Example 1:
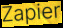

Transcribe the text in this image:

Zapier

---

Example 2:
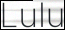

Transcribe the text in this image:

Lulu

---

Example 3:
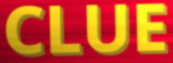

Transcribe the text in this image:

CLUE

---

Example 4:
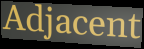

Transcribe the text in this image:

Adjacent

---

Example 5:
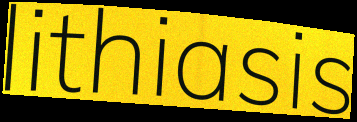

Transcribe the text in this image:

lithiasis